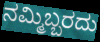
ನಮ್ಮಿಬ್ಬರದು